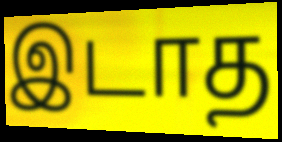
இடாத